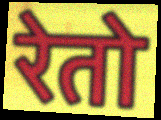
रेतो